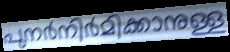
പുനർനിർമിക്കാനുള്ള